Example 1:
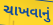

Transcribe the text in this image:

ચાખવાનું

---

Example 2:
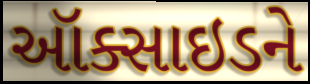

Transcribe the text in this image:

ઑક્સાઇડને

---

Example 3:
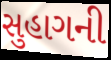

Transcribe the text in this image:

સુહાગની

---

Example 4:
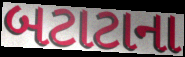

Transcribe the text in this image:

બટાટાના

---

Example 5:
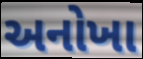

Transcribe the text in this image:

અનોખા